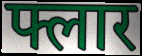
फ्लार